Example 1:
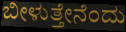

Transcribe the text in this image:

ಬೀಳುತ್ತೇನೆಂದು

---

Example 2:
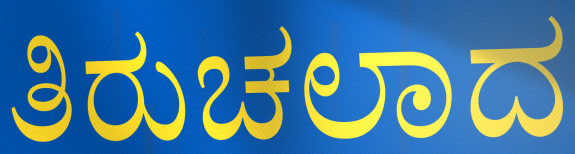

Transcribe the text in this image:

ತಿರುಚಲಾದ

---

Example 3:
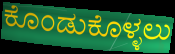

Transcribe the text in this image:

ಕೊಂಡುಕೊಳ್ಳಲು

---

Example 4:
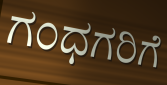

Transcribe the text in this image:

ಗಂಧಗರಿಗೆ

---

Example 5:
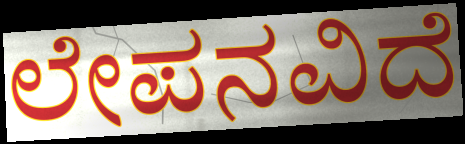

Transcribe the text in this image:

ಲೇಪನವಿದೆ